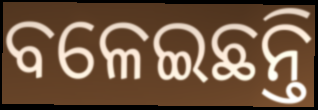
ବଳେଇଛନ୍ତି